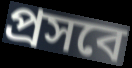
প্রসবে